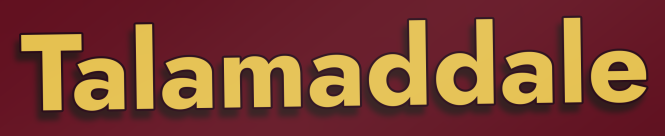
Talamaddale